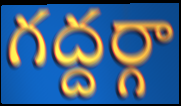
గద్దర్గా